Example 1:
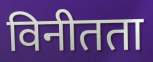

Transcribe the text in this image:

विनीतता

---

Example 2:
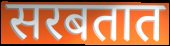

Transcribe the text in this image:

सरबतात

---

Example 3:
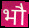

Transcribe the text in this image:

भौ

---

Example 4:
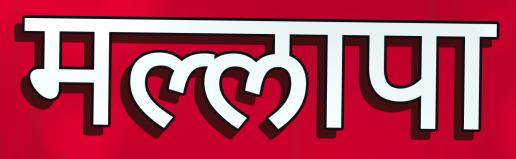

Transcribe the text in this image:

मल्लापा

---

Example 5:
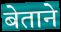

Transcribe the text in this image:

बेताने